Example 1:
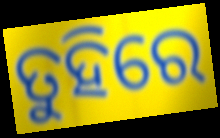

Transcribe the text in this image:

ତୁହିରେ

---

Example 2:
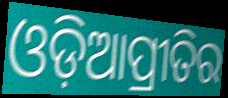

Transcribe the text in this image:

ଓଡ଼ିଆପ୍ରୀତିର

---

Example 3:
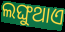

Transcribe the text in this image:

ଲଙ୍ଘୁଥାଏ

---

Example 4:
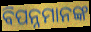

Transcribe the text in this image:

ବିପନ୍ନମାନଙ୍କ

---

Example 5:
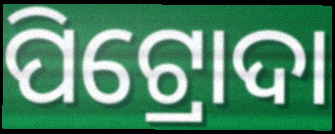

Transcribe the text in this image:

ପିଟ୍ରୋଦା